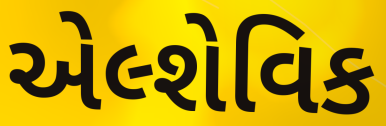
એલ્શેવિક